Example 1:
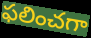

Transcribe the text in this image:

ఫలించగా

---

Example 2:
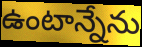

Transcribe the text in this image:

ఉంటాన్నేను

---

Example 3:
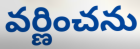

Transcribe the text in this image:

వర్ణించను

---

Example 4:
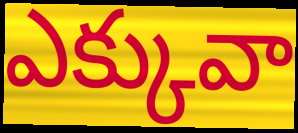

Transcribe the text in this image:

ఎక్కువా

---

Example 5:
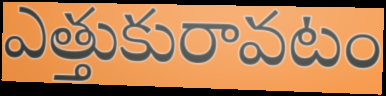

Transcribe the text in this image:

ఎత్తుకురావటం